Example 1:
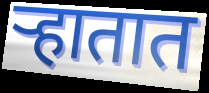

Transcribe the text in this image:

ऱ्हातात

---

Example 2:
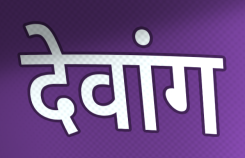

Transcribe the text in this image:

देवांग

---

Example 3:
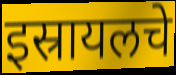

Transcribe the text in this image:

इस्रायलचे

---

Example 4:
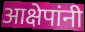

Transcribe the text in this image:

आक्षेपांनी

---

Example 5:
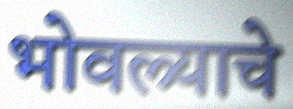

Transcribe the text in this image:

भोवल्याचे